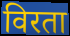
विरता